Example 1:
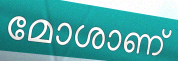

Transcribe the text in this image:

മോശാണ്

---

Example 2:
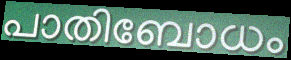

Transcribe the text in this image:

പാതിബോധം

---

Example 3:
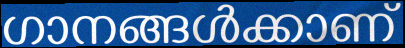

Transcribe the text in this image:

ഗാനങ്ങൾക്കാണ്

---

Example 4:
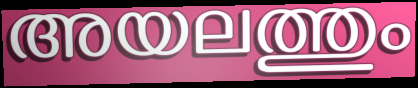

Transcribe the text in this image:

അയലത്തും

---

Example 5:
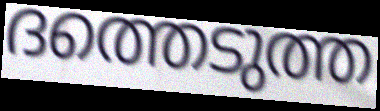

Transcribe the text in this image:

ദത്തെടുത്ത